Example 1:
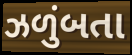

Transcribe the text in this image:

ઝળુંબતા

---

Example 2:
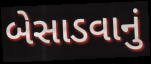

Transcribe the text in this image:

બેસાડવાનું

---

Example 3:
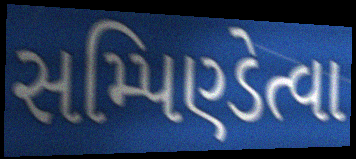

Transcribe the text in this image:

સમ્પિણ્ડેત્વા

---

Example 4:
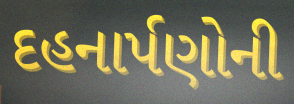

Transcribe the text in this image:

દહનાર્પણોની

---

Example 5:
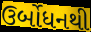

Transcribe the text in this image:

ઉર્બોધનથી